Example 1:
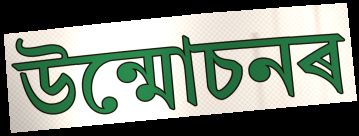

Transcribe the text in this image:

উন্মোচনৰ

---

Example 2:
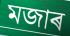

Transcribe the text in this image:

মজাৰ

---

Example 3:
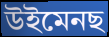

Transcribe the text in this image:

উইমেনছ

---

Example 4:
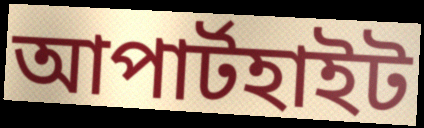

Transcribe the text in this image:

আপাৰ্টহাইট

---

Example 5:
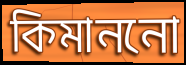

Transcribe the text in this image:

কিমাননো